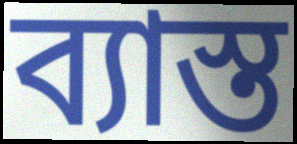
ব্যাস্ত